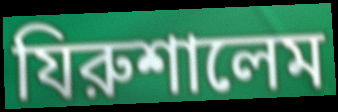
যিরুশালেম